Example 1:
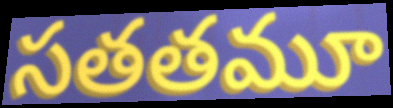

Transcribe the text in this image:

సతతమూ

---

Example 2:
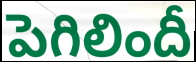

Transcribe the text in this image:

పెగిలిందీ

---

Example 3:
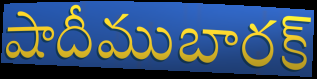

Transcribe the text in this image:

షాదీముబారక్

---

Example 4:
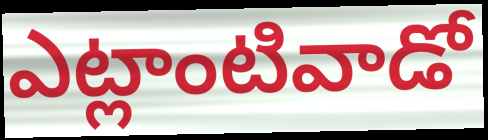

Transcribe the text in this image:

ఎట్లాంటివాడో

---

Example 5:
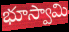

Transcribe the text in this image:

భూస్వామి